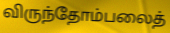
விருந்தோம்பலைத்